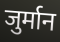
जुर्मान